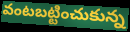
వంటబట్టించుకున్న